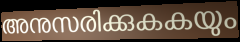
അനുസരിക്കുകകയും